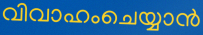
വിവാഹംചെയ്യാൻ